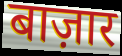
बाज़ार